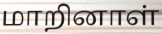
மாறினாள்